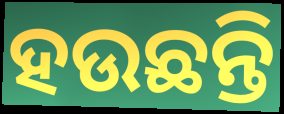
ହଉଛନ୍ତି